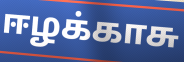
ஈழக்காசு